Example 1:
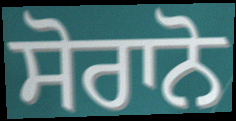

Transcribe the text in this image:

ਸੋਰਾਨੋ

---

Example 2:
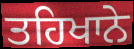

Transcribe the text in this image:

ਤਹਿਖਾਨੇ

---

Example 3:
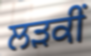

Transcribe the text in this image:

ਲੜਕੀਂ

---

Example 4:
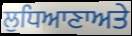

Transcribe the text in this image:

ਲੁਧਿਆਣਾਅਤੇ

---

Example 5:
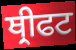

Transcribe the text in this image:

ਥ੍ਰੀਫਟ